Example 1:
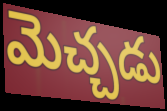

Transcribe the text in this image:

మెచ్చడు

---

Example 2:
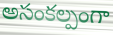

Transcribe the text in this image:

అసంకల్పంగా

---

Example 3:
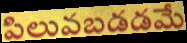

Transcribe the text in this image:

పిలువబడడమే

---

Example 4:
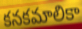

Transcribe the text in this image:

కనకమాలికా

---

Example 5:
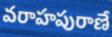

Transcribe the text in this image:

వరాహపురాణే